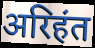
अरिहंत